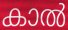
കാൽ